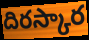
దిరస్కార